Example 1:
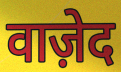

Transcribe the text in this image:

वाज़ेद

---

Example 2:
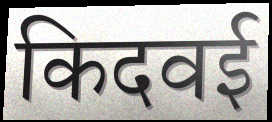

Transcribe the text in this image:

किदवई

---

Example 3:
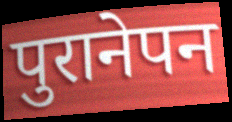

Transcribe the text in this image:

पुरानेपन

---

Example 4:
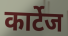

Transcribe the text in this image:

कार्टेज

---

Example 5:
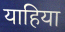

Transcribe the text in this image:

याहिया